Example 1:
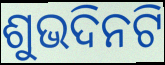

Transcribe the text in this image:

ଶୁଭଦିନଟି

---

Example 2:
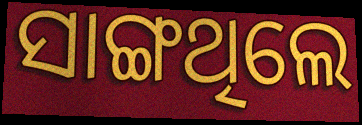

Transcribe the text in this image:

ସାଙ୍ଗଥିଲେ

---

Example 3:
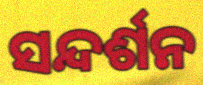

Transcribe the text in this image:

ସନ୍ଦର୍ଶନ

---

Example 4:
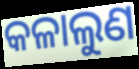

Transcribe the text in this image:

କଳାଲୁଣ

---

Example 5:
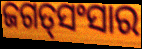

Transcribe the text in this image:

ଜଗତ୍‌ସଂସାର